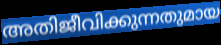
അതിജീവിക്കുന്നതുമായ